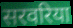
सरवरिया